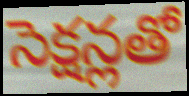
సెక్షన్లతో